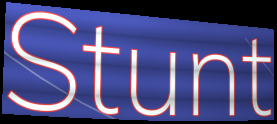
Stunt